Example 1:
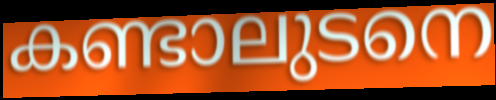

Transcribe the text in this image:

കണ്ടാലുടനെ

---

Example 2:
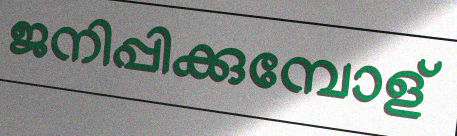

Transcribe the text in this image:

ജനിപ്പിക്കുമ്പോള്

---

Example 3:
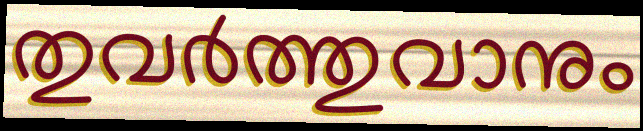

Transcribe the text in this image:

തുവർത്തുവാനും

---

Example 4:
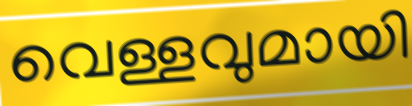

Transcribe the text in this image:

വെള്ളവുമായി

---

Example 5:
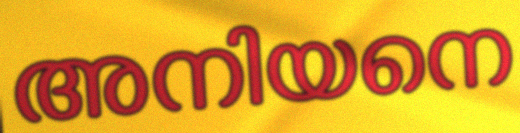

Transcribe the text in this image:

അനിയനെ